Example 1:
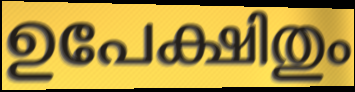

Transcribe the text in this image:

ഉപേക്ഷിതും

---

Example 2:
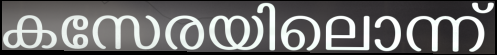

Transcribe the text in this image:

കസേരയിലൊന്ന്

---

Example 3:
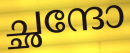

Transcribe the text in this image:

ച്ഛന്ദോ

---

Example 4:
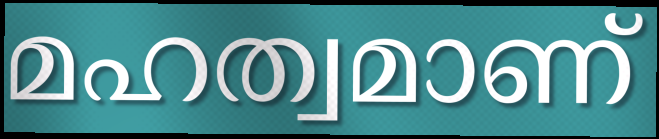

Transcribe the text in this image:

മഹത്വമാണ്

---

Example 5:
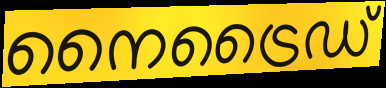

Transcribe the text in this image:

നൈട്രൈഡ്